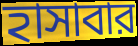
হাসাবার